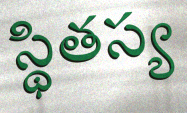
స్థితస్య